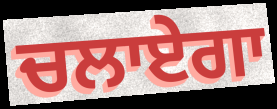
ਚਲਾਏਗਾ